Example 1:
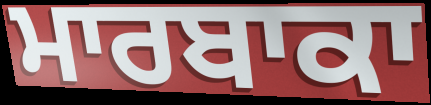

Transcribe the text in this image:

ਮਾਰਬਾਕਾ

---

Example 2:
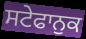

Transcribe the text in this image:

ਸਟੇਫਾਨੁਕ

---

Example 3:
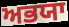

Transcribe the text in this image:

ਅਭਯਾ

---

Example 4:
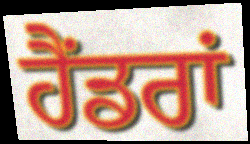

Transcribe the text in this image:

ਹੈਂਡਰਾਂ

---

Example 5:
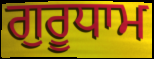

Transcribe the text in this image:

ਗੁਰੂਧਾਮ